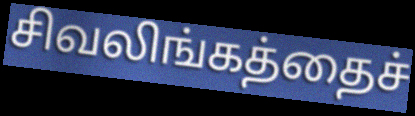
சிவலிங்கத்தைச்